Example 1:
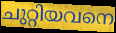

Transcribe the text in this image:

ചുറ്റിയവനെ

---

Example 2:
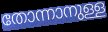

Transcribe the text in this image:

തോന്നാനുള്ള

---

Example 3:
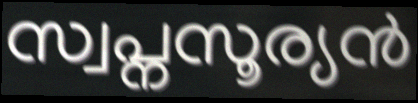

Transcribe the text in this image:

സ്വപ്നസൂര്യൻ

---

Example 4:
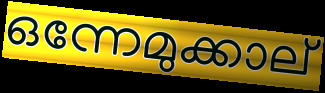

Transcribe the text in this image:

ഒന്നേമുക്കാല്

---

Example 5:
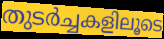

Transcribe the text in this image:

തുടർച്ചകളിലൂടെ